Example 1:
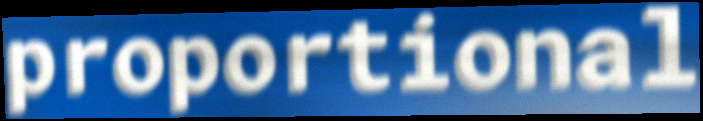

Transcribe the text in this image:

proportional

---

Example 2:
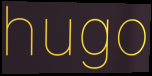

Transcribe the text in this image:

hugo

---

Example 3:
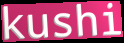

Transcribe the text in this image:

kushi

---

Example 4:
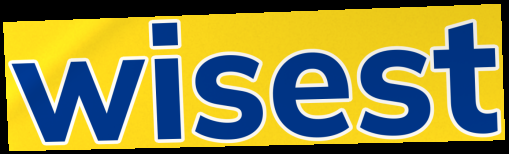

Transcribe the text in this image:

wisest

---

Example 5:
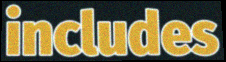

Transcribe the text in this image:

includes